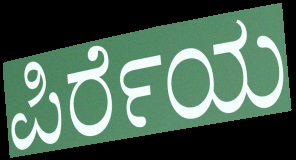
ಪಿರ್ರೆಯ